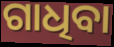
ଗାଧିବା